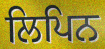
ਲਿਪਿਨ